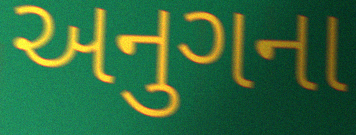
અનુગના